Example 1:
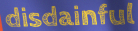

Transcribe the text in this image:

disdainful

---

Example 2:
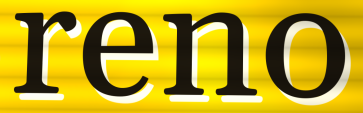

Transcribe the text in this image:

reno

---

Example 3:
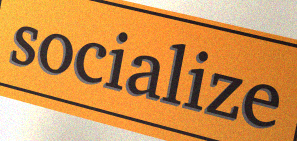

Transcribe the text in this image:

socialize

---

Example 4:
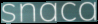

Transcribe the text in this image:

snaca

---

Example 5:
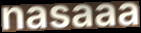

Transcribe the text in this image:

nasaaa